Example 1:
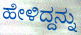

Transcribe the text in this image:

ಹೇಳಿದ್ದನ್ನು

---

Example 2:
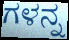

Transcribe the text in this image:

ಗಳನ್ನ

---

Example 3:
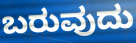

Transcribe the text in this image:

ಬರುವುದು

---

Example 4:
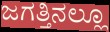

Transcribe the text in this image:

ಜಗತ್ತಿನಲ್ಲೂ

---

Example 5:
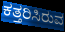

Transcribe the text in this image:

ಕತ್ತರಿಸಿರುವ